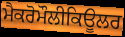
ਮੈਕਰੋਮੌਲੀਕਿਊਲਰ